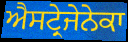
ਐਸਟ੍ਰੇਜੇਨੇਕਾ